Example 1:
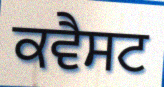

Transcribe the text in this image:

ਕਵੈਸਟ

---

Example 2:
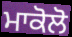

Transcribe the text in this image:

ਮਾਕੋਲੋ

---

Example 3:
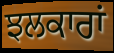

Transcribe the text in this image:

ਝਲਕਾਰਾਂ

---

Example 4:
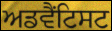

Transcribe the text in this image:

ਅਡਵੈਂਟਿਸਟ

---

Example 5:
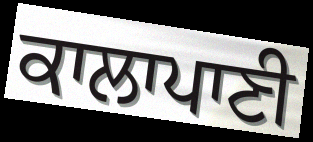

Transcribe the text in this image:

ਕਾਲਾਪਾਣੀ